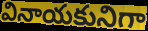
వినాయకునిగా